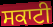
ਸਕਾਟੀ